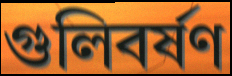
গুলিবর্ষণ